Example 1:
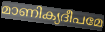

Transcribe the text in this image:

മാണിക്യദീപമേ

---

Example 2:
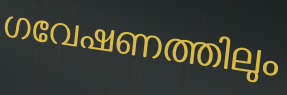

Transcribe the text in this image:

ഗവേഷണത്തിലും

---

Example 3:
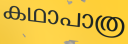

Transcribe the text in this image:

കഥാപാത്ര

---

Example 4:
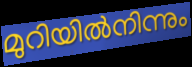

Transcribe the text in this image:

മുറിയിൽനിന്നും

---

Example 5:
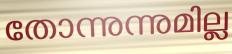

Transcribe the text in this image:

തോന്നുന്നുമില്ല